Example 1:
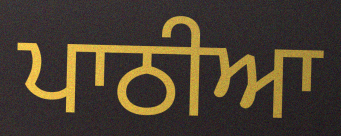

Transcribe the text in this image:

ਪਾਠੀਆ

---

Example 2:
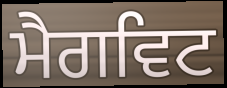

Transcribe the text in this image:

ਮੈਗਵਿਟ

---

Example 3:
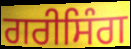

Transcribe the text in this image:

ਗਰੀਸਿੰਗ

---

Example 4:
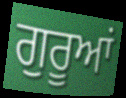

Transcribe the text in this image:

ਗੁਰੂਆਂ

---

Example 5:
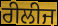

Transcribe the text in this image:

ਰੀਲੀਜ